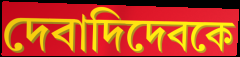
দেবাদিদেবকে